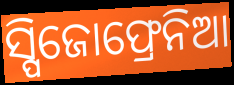
ସ୍ପିଜୋଫ୍ରେନିଆ